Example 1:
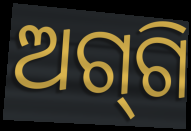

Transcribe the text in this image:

ଅଗ୍‌ଗି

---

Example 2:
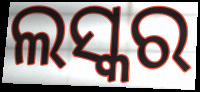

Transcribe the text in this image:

ଲସ୍କର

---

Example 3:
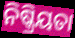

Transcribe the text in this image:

ନିଷ୍କ୍ରିୟତା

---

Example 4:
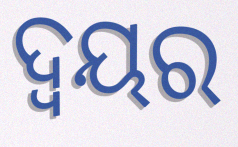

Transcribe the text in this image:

ଦ୍ବୟର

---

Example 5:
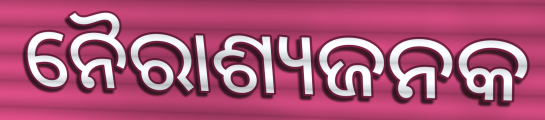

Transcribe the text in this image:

ନୈରାଶ୍ୟଜନକ